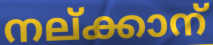
നല്ക്കാന്